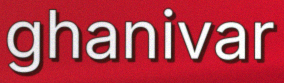
ghanivar